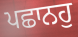
ਪਛਾਨਹੁ